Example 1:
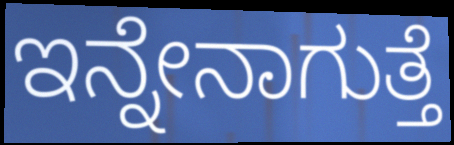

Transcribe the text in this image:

ಇನ್ನೇನಾಗುತ್ತೆ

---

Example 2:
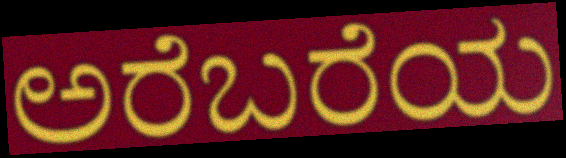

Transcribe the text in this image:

ಅರೆಬರೆಯ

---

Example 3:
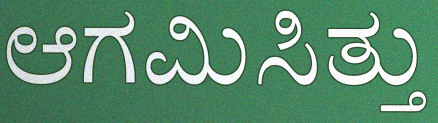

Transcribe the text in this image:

ಆಗಮಿಸಿತ್ತು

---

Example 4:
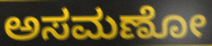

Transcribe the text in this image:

ಅಸಮಣೋ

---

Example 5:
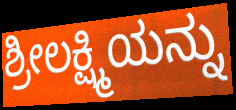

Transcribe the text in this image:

ಶ್ರೀಲಕ್ಷ್ಮಿಯನ್ನು